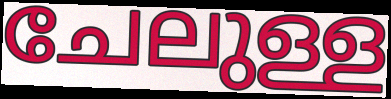
ചേലുള്ള